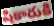
షికారుకి